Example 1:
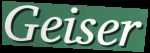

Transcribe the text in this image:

Geiser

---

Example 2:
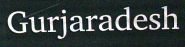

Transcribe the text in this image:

Gurjaradesh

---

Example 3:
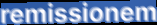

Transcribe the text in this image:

remissionem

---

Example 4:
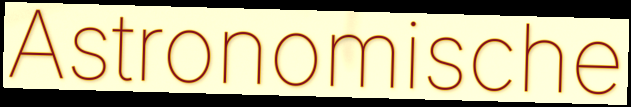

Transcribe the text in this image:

Astronomische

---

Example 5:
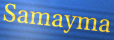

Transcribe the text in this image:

Samayma